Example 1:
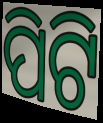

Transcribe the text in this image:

ପିଟି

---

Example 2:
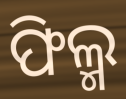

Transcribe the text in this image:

ଫିଲ୍ମ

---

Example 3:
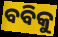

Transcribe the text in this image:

ବବିକୁ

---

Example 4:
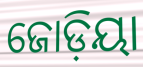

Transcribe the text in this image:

ଜୋଡ଼ିୟା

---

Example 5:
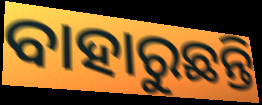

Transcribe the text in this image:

ବାହାରୁଛନ୍ତି